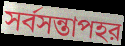
সর্বসন্তাপহর